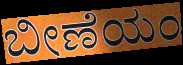
ಬೀಣೆಯಂ